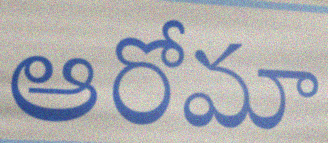
ఆరోమా